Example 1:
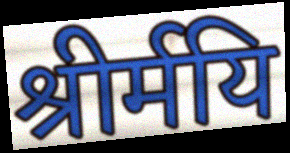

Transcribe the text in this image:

श्रीर्मयि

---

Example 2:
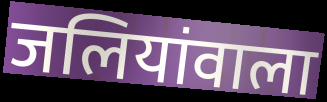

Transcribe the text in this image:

जलियांवाला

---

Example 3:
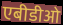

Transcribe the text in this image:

एबीडीओ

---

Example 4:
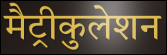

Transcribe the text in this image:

मैट्रीकुलेशन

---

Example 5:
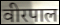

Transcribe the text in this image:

वीरपाल